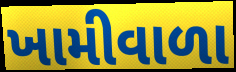
ખામીવાળા